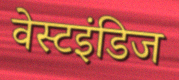
वेस्टइंडिज